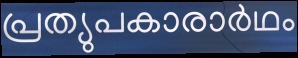
പ്രത്യുപകാരാർഥം